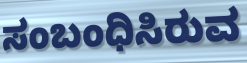
ಸಂಬಂಧಿಸಿರುವ